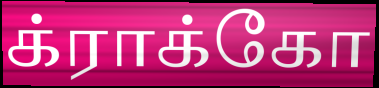
க்ராக்கோ